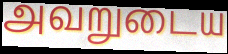
அவறுடைய